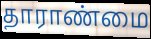
தாராண்மை